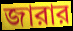
জারার